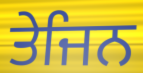
ਤੇਜਿਨ